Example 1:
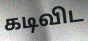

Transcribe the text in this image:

கடிவிட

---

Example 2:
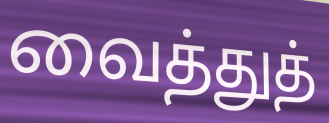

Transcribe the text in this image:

வைத்துத்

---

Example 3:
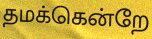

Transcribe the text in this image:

தமக்கென்றே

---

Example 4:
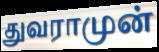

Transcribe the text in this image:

துவராமுன்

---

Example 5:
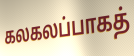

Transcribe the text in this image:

கலகலப்பாகத்